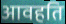
आवहति